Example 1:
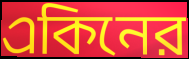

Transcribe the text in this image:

একিনের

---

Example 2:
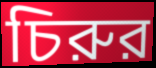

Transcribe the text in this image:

চিরুর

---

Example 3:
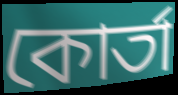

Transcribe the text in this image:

কোর্তা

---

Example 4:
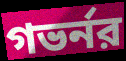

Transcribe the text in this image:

গভর্নর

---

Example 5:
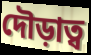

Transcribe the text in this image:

দৌড়াত্ব